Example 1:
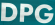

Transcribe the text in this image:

DPG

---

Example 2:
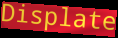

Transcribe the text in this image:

Displate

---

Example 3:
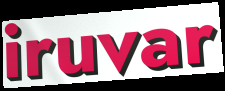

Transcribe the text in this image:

iruvar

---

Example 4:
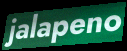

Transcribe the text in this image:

jalapeno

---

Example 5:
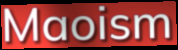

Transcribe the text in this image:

Maoism